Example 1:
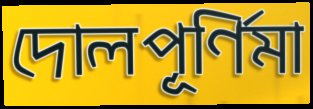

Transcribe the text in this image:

দোলপূর্ণিমা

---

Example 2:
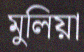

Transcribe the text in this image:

মুলিয়া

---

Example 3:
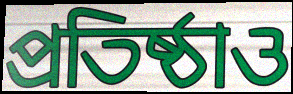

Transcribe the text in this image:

প্রতিষ্ঠাও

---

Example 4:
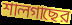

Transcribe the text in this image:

শালগাছের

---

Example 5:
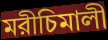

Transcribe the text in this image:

মরীচিমালী